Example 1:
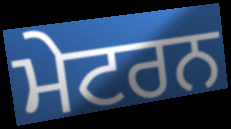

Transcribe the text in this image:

ਮੇਟਰਨ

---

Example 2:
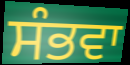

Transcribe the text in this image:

ਸੰਭਵਾ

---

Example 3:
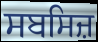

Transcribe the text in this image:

ਸਬਸਿਜ਼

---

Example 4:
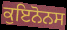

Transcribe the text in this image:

ਕੁਇਨੋਨਸ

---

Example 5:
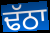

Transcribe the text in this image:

ਢੱਠਾ